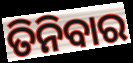
ତିନିବାର